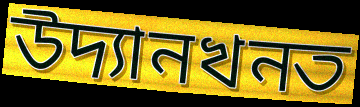
উদ্যানখনত